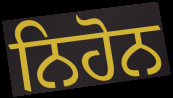
ਨਿਹੋਨ